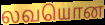
லவயொன